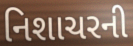
નિશાચરની